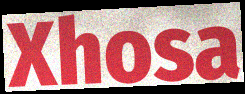
Xhosa